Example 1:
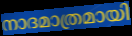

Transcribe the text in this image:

നാദമാത്രമായി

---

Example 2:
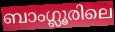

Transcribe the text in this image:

ബാംഗ്ലൂരിലെ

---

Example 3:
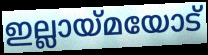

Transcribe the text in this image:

ഇല്ലായ്മയോട്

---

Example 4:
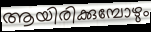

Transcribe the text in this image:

ആയിരിക്കുമ്പോഴും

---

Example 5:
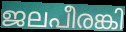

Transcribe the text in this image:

ജലപീരങ്കി